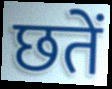
छतें